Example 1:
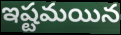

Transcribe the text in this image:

ఇష్టమయిన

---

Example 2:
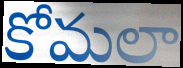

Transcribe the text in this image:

కోమలా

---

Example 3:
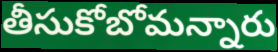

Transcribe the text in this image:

తీసుకోబోమన్నారు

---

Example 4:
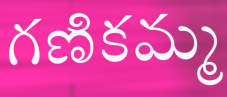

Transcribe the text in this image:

గణికమ్మ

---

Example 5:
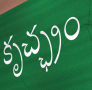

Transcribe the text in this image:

కృచ్ఛ్రం